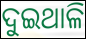
ଦୁଇଥାଳି